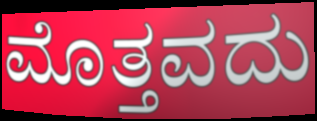
ಮೊತ್ತವದು